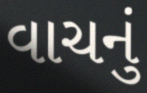
વાચનું